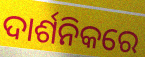
ଦାର୍ଶନିକରେ